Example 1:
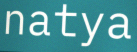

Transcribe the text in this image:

natya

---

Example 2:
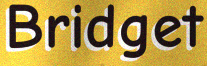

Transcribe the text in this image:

Bridget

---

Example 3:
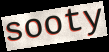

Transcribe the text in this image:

sooty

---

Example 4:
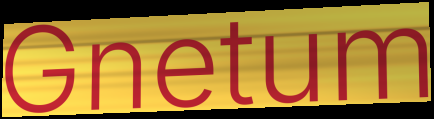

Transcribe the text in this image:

Gnetum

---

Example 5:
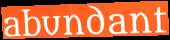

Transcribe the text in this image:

abundant